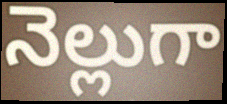
నెల్లుగా